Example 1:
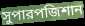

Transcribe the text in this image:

সুপারপজিশান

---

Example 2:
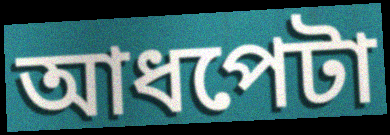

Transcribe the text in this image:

আধপেটা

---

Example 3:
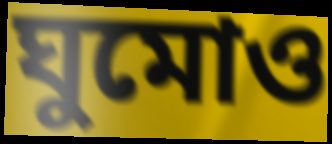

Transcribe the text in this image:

ঘুমোও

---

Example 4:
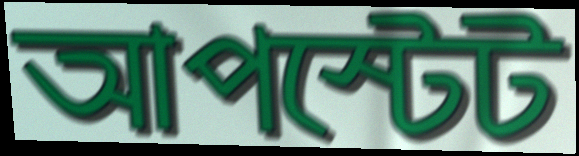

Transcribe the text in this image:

আপস্টেট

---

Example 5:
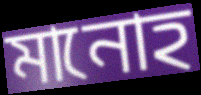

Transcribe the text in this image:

মানোহ